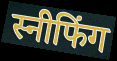
स्नीफिंग